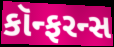
કૉન્ફરન્સ